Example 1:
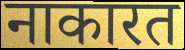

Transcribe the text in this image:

नाकारत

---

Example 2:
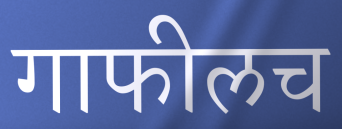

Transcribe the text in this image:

गाफीलच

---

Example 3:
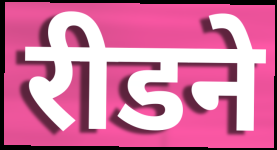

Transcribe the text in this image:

रीडने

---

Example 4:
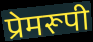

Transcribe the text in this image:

प्रेमरूपी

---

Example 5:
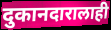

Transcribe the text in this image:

दुकानदारालाही